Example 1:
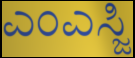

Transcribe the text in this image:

ಎಂಎಸ್ಜಿ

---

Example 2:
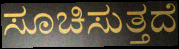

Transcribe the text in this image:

ಸೂಚಿಸುತ್ತದೆ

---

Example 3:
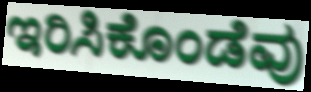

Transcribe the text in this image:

ಇರಿಸಿಕೊಂಡೆವು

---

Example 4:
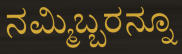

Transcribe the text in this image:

ನಮ್ಮಿಬ್ಬರನ್ನೂ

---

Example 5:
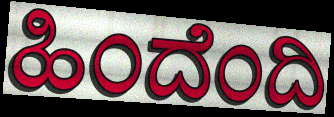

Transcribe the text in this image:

ಹಿಂದೆಂದಿ